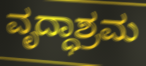
ವೃದ್ಧಾಶ್ರಮ